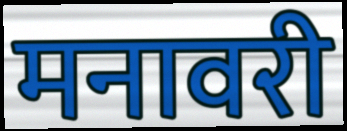
मनावरी